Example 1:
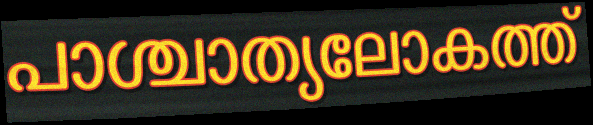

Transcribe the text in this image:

പാശ്ചാത്യലോകത്ത്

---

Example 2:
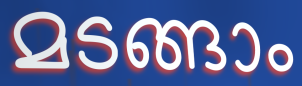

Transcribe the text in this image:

മടങ്ങാം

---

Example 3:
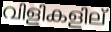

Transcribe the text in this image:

വിളികളില്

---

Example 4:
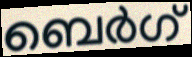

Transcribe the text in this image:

ബെർഗ്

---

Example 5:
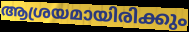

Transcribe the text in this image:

ആശ്രയമായിരിക്കും